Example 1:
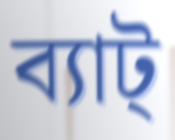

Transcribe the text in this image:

ব্যাট্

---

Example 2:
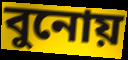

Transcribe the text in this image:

বুনোয়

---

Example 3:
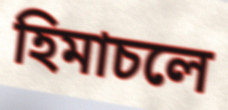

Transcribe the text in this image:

হিমাচলে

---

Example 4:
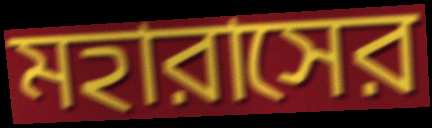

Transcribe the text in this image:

মহারাসের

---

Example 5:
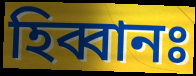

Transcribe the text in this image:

হিব্বানঃ